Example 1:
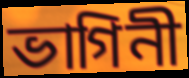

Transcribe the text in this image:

ভাগিনী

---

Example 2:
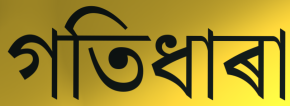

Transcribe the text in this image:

গতিধাৰা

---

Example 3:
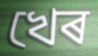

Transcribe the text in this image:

খেৰ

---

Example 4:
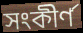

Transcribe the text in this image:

সংকীৰ্ণ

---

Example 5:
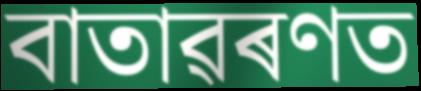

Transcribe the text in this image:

বাতাৱৰণত